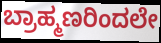
ಬ್ರಾಹ್ಮಣರಿಂದಲೇ